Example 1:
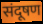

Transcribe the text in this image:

संदूषण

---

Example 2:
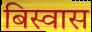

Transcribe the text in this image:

बिस्वास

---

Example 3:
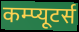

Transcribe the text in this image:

कम्प्यूटर्स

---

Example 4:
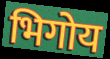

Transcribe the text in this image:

भिगोय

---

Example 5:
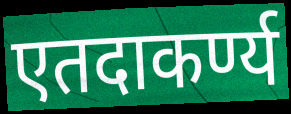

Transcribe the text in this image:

एतदाकर्ण्य